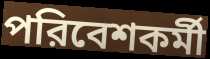
পরিবেশকর্মী